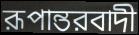
রূপান্তরবাদী